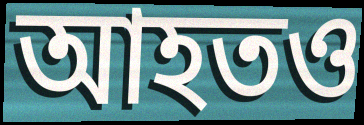
আহতও